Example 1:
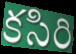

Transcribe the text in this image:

కసిరి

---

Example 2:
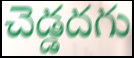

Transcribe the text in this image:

చెడ్డదగు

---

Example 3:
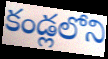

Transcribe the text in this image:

కండ్లలోని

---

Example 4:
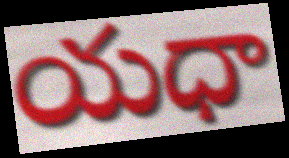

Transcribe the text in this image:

యధా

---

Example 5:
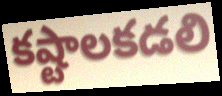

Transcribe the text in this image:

కష్టాలకడలి